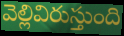
వెల్లివిరుస్తుంది